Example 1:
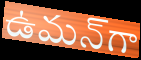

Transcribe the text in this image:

ఉమన్‌గా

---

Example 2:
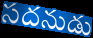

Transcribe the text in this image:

సదనుడు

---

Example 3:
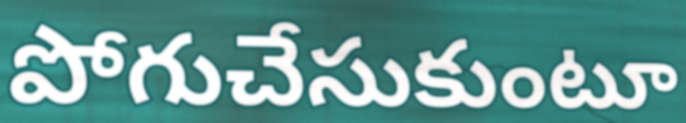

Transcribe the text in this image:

పోగుచేసుకుంటూ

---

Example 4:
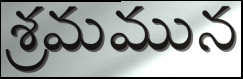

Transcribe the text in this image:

శ్రమమున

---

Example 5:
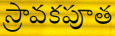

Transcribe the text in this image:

స్రావకపూత